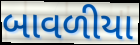
બાવળીયા